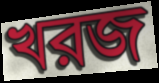
খরজ